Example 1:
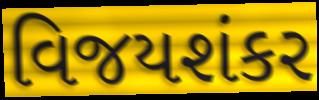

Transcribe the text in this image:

વિજયશંકર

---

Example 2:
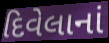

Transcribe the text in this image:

દિવેલાનાં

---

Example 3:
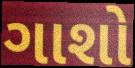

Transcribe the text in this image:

ગાશો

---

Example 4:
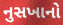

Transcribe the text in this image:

નુસખાનો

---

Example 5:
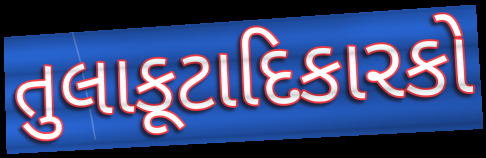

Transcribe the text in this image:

તુલાકૂટાદિકારકો